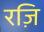
रज़ि